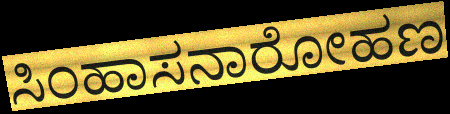
ಸಿಂಹಾಸನಾರೋಹಣ